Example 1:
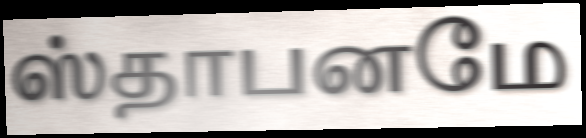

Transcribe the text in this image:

ஸ்தாபனமே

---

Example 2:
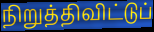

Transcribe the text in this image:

நிறுத்திவிட்டுப்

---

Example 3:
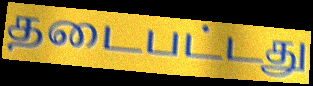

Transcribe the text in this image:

தடைபட்டது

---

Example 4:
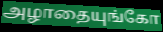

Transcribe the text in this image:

அழாதையுங்கோ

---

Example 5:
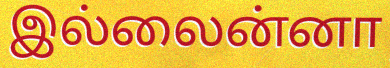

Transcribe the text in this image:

இல்லைன்னா